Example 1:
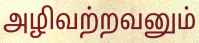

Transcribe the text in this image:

அழிவற்றவனும்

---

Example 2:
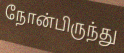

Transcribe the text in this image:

நோன்பிருந்து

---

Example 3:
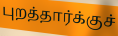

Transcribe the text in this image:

புறத்தார்க்குச்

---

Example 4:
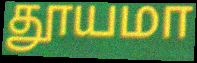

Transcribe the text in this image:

தூயமா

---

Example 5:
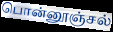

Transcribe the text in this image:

பொன்னூஞ்சல்